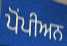
ਪੋਂਪੀਅਨ